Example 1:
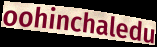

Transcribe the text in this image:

oohinchaledu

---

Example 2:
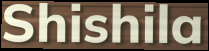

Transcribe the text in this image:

Shishila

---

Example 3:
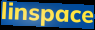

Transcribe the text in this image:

linspace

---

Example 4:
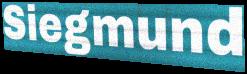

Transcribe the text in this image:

Siegmund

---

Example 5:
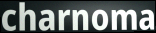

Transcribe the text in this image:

charnoma